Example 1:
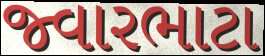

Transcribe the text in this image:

જ્વારભાટા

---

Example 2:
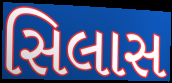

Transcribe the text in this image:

સિલાસ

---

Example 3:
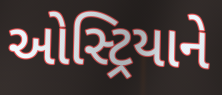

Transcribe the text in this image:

ઓસ્ટ્રિયાને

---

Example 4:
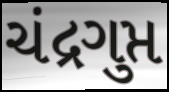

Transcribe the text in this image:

ચંદ્રગુપ્ત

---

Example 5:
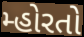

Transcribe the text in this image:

મ્હોરતો